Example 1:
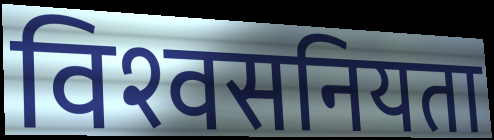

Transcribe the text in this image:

विश्वसनियता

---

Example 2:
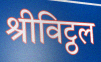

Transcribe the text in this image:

श्रीविट्ठल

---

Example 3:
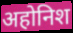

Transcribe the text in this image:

अहोनिश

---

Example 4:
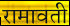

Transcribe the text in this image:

रामावती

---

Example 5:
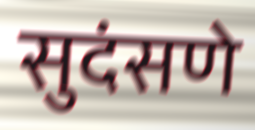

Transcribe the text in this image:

सुदंसणे